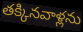
తక్కినవాళ్లను